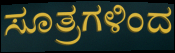
ಸೂತ್ರಗಳಿಂದ